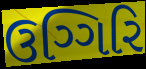
ઉગ્ગિરિ